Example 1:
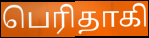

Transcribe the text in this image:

பெரிதாகி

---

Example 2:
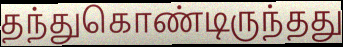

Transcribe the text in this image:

தந்துகொண்டிருந்தது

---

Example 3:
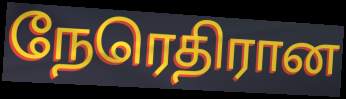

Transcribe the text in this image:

நேரெதிரான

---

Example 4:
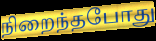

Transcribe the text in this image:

நிறைந்தபோது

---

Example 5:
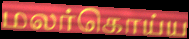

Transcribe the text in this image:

மலர்கொய்ய